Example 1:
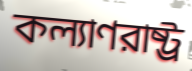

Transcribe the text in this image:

কল্যাণরাষ্ট্র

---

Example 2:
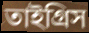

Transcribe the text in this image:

তাইগ্রিস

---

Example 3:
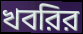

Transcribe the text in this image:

খবরির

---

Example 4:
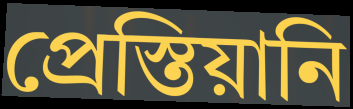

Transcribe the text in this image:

প্রেস্তিয়ানি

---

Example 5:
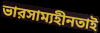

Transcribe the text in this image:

ভারসাম্যহীনতাই